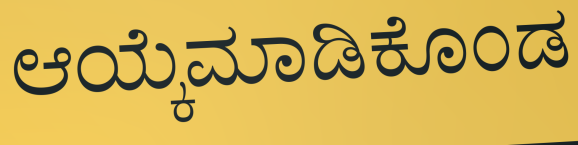
ಆಯ್ಕೆಮಾಡಿಕೊಂಡ